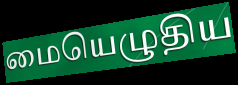
மையெழுதிய